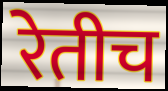
रेतीच